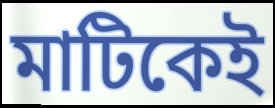
মাটিকেই